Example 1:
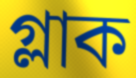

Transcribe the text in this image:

গ্লাক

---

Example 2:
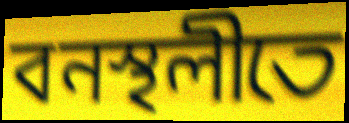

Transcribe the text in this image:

বনস্থলীতে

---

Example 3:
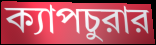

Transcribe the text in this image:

ক্যাপচুরার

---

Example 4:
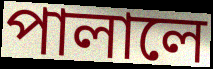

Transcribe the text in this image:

পালালে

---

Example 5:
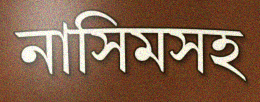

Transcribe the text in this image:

নাসিমসহ